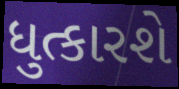
ધુત્કારશે